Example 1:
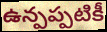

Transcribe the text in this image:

ఉన్పప్పటికీ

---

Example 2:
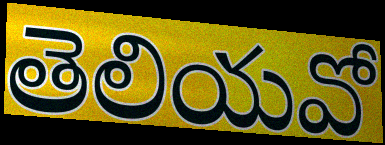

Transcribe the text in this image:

తెలియవో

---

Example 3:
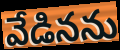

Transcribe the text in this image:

వేడినను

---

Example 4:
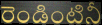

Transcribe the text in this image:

రెండింటినీ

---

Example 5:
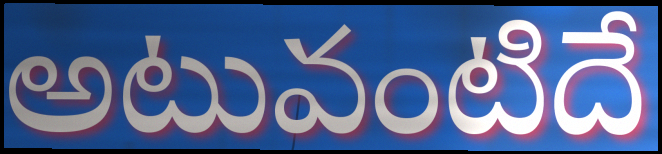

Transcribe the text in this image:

అటువంటిదే